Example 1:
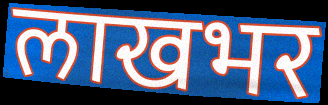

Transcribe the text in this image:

लाखभर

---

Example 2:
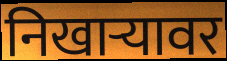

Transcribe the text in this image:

निखार्‍यावर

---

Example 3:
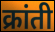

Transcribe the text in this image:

क्रांती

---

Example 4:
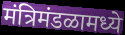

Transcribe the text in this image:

मंत्रिमंडळामध्ये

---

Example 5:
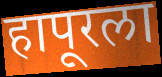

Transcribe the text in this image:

हापूरला